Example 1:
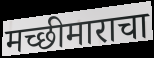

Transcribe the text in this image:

मच्छीमाराचा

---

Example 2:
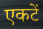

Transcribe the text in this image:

एकटें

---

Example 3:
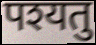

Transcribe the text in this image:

पश्यतु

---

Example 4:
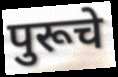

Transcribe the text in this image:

पुरूचे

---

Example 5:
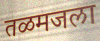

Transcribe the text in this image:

तळमजला